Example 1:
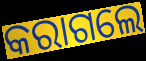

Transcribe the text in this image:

କରାଗଲେ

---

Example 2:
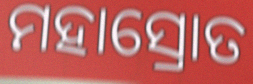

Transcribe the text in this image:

ମହାସ୍ରୋତ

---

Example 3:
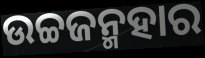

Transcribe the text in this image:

ଉଚ୍ଚଜନ୍ମହାର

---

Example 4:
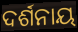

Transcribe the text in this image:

ଦର୍ଶନାୟ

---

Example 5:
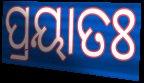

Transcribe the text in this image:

ପ୍ରୟାତଃ